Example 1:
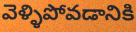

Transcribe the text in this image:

వెళ్ళిపోవడానికి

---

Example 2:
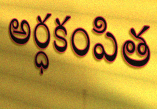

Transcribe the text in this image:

అర్ధకంపిత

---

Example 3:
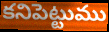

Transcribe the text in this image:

కనిపెట్టుము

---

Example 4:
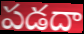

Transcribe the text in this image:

పడదా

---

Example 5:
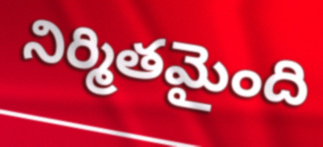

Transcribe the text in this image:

నిర్మితమైంది